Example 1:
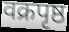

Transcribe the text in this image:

वक्रपृष्ठ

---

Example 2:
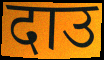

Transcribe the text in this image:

दाउ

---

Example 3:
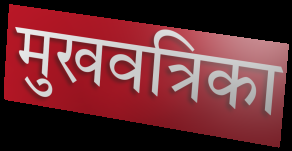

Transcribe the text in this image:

मुखवत्रिका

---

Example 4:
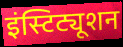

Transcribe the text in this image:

इंस्टिट्यूशन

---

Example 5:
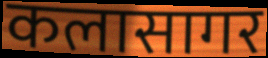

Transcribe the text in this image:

कलासागर